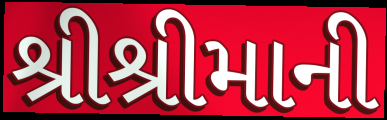
શ્રીશ્રીમાની